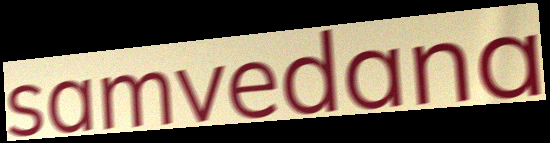
samvedana